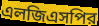
এলজিএসপির